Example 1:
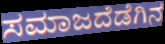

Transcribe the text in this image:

ಸಮಾಜದೆಡೆಗಿನ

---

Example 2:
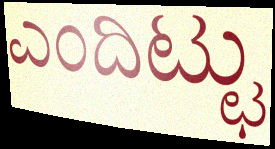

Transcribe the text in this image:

ಎಂದಿಟ್ಟು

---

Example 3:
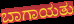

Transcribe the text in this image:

ಬಾಗಾಯತು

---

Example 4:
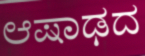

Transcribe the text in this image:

ಆಷಾಢದ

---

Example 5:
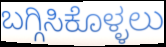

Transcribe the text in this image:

ಬಗ್ಗಿಸಿಕೊಳ್ಳಲು